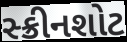
સ્ક્રીનશોટ